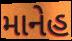
માનેહ